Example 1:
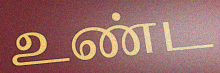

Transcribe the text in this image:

உண்ட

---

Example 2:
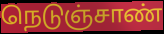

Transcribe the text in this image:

நெடுஞ்சாண்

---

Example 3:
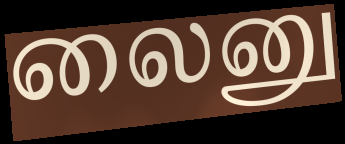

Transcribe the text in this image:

லைனு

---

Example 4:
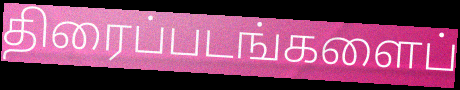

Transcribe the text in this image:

திரைப்படங்களைப்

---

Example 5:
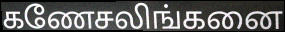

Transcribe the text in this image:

கணேசலிங்கனை